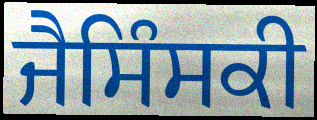
ਜੈਸਿੰਸਕੀ